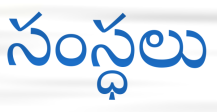
సంస్ధలు